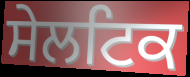
ਸੇਲਟਿਕ